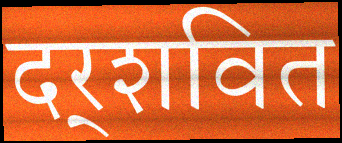
दर्शवित